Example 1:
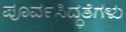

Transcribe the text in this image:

ಪೂರ್ವಸಿದ್ಧತೆಗಳು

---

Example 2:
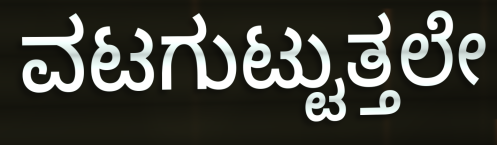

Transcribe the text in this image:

ವಟಗುಟ್ಟುತ್ತಲೇ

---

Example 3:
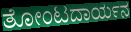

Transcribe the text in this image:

ತೋಂಟದಾರ್ಯನ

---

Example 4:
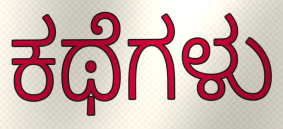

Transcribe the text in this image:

ಕಥೆಗಳು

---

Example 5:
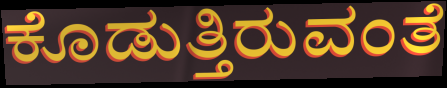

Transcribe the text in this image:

ಕೊಡುತ್ತಿರುವಂತೆ